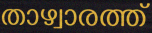
താഴ്വാരത്ത്